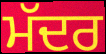
ਮੱਦਰ